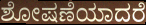
ಶೋಷಣೆಯಾದರೆ